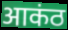
आकंठ